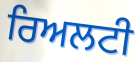
ਰਿਅਲਟੀ